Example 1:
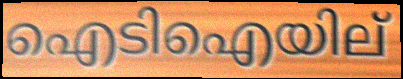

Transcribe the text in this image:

ഐടിഐയില്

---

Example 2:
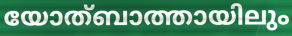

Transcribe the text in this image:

യോത്ബാത്തായിലും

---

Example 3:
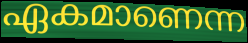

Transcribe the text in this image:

ഏകമാണെന്ന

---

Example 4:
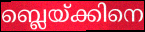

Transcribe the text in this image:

ബ്ലെയ്ക്കിനെ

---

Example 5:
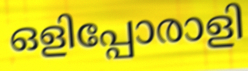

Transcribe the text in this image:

ഒളിപ്പോരാളി